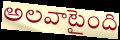
అలవాటైంది